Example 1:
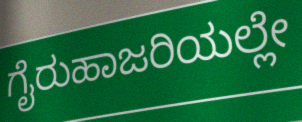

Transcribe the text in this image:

ಗೈರುಹಾಜರಿಯಲ್ಲೇ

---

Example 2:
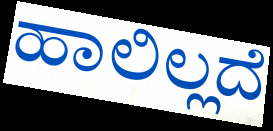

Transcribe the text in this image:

ಹಾಲಿಲ್ಲದೆ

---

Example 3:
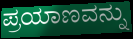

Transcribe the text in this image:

ಪ್ರಯಾಣವನ್ನು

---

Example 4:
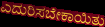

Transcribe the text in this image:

ಎದುರಿಸಬೇಕಾಯಿತು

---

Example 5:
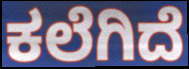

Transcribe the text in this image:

ಕಲೆಗಿದೆ